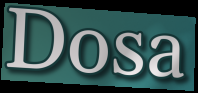
Dosa